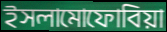
ইসলামোফোবিয়া